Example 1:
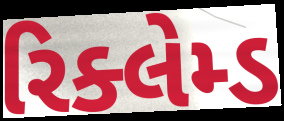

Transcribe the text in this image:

રિક્લેમ્ડ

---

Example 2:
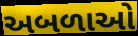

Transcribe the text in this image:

અબળાઓ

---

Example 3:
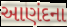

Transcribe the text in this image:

આણંદના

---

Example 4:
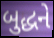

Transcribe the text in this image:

બુદ્ધને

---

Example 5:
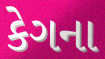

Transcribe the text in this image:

કેગના